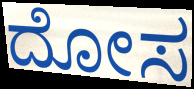
ದೋಸ